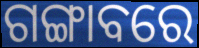
ଗଙ୍ଗାବରେ